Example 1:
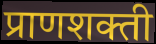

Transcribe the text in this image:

प्राणशक्ती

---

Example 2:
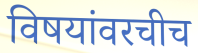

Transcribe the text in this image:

विषयांवरचीच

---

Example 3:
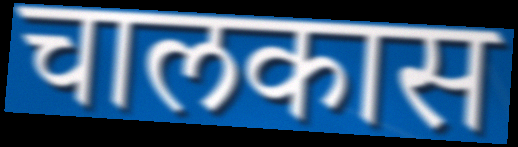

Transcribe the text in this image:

चालकास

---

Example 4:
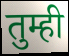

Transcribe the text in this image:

तुम्ही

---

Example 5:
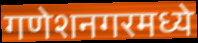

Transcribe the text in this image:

गणेशनगरमध्ये